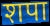
शपा